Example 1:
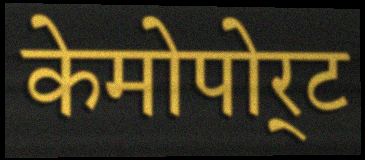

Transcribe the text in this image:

केमोपोर्ट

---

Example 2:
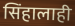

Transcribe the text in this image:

सिंहालाही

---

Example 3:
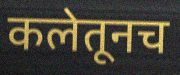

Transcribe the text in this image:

कलेतूनच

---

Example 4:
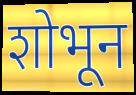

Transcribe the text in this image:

शोभून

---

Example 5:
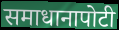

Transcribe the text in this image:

समाधानापोटी